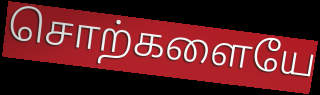
சொற்களையே